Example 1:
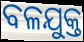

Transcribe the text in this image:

ବଳଯୁକ୍ତ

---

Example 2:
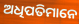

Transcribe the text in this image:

ଅଧିପତିମାନେ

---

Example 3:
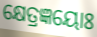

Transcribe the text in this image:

କ୍ଷେତ୍ରଜ୍ଞୟୋଃ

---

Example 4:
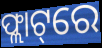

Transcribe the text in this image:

ଫ୍ଲାଟ୍‌ରେ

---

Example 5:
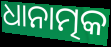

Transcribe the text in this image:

ଧାନାତ୍ମକ